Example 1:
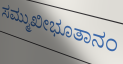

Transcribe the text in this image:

ಸಮ್ಮುಖೀಭೂತಾನಂ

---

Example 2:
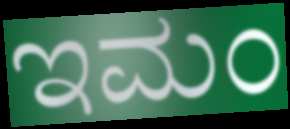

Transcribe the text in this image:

ಇಮಂ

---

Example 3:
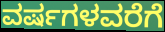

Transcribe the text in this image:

ವರ್ಷಗಳವರೆಗೆ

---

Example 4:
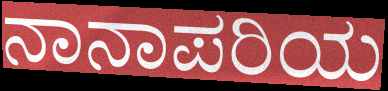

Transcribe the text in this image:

ನಾನಾಪರಿಯ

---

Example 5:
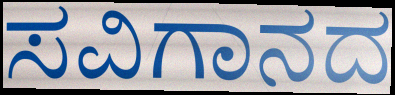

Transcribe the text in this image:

ಸವಿಗಾನದ